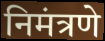
निमंत्रणे